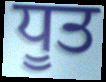
ਧੂਤ